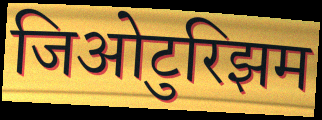
जिओटुरिझम